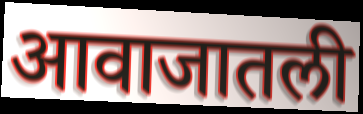
आवाजातली